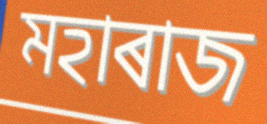
মহাৰাজ